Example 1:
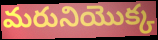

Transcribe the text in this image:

మరునియొక్క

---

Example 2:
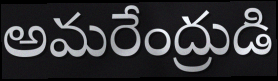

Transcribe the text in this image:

అమరేంద్రుడి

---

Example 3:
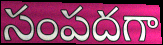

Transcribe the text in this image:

సంపదగా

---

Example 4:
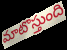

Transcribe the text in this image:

మాటొస్తుంది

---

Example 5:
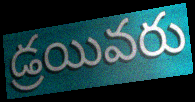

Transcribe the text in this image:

డ్రయివరు